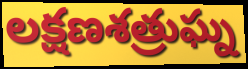
లక్షణశత్రుఘ్న